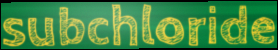
subchloride